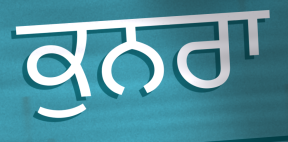
ਕੁਨਰਾ